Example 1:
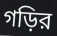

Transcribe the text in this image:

গড়ির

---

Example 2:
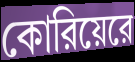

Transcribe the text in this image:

কোরিয়েরে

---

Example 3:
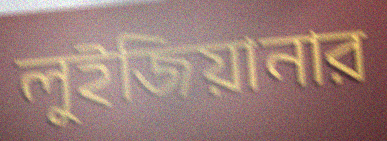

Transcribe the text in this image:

লুইজিয়ানার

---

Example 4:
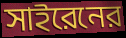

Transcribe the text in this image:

সাইরেনের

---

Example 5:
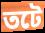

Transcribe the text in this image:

তটে